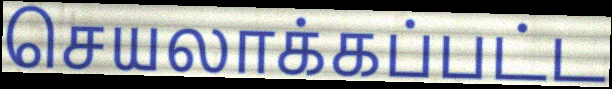
செயலாக்கப்பட்ட